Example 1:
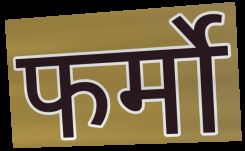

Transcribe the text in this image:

फर्मो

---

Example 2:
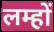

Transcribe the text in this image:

लम्हों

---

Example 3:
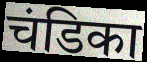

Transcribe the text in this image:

चंडिका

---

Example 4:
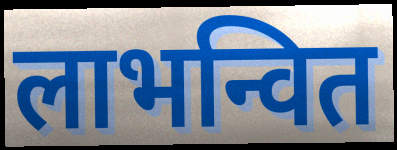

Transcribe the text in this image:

लाभन्वित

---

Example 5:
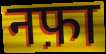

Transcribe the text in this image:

नफ़ा